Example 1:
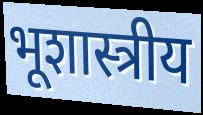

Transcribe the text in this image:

भूशास्त्रीय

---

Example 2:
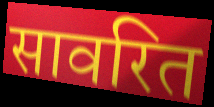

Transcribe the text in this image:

सावरित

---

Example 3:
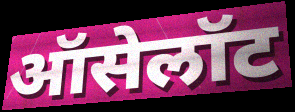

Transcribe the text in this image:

ऑसेलॉट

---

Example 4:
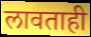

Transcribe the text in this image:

लावताही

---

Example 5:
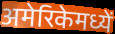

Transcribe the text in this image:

अमेरिकेमध्यें